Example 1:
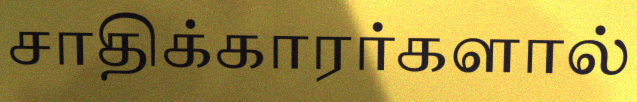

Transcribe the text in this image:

சாதிக்காரர்களால்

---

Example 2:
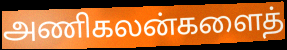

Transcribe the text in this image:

அணிகலன்களைத்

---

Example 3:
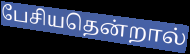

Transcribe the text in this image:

பேசியதென்றால்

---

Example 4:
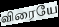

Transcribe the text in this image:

விரையே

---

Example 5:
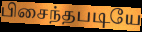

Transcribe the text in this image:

பிசைந்தபடியே